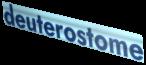
deuterostome